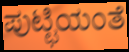
ಪುಟ್ಟಿಯಂತೆ